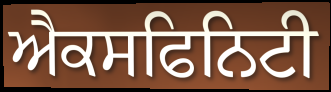
ਐਕਸਫਿਨਿਟੀ